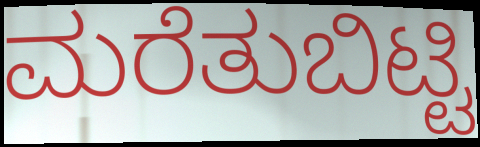
ಮರೆತುಬಿಟ್ಟಿ